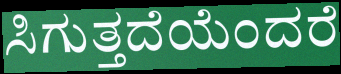
ಸಿಗುತ್ತದೆಯೆಂದರೆ